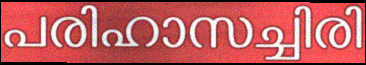
പരിഹാസച്ചിരി